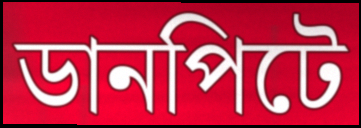
ডানপিটে